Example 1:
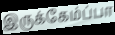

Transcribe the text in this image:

இருக்கேம்ப்பா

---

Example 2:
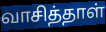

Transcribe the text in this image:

வாசித்தாள்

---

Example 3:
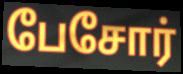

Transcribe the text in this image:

பேசோர்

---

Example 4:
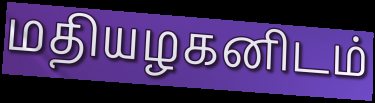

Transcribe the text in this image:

மதியழகனிடம்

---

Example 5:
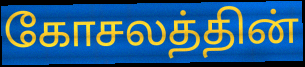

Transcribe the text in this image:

கோசலத்தின்